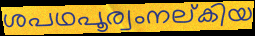
ശപഥപൂര്വംനല്കിയ